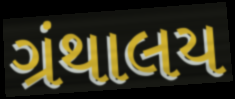
ગ્રંથાલય